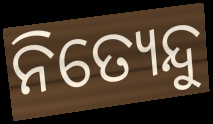
ନିତ୍ୟେନ୍ଦୁ